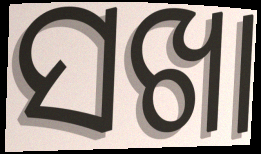
ସଖା